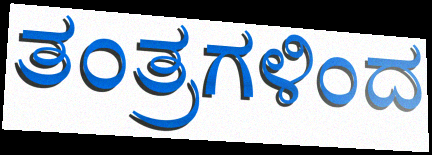
ತಂತ್ರಗಳಿಂದ